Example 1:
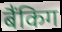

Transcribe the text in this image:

बैंकिग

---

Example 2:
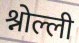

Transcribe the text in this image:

श्नोल्ली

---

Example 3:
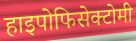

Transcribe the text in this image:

हाइपोफिसेक्टोमी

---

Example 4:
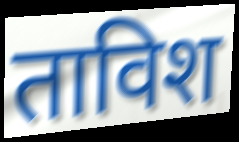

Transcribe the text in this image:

ताविश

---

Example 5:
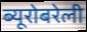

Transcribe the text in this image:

ब्यूरोबरेली